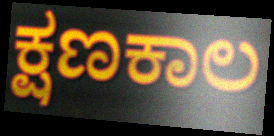
ಕ್ಷಣಕಾಲ